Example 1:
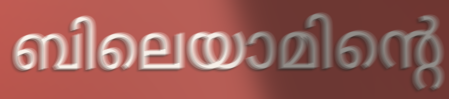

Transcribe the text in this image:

ബിലെയാമിന്റെ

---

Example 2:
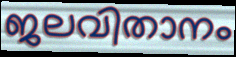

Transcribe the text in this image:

ജലവിതാനം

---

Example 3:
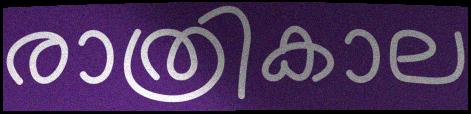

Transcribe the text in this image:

രാത്രികാല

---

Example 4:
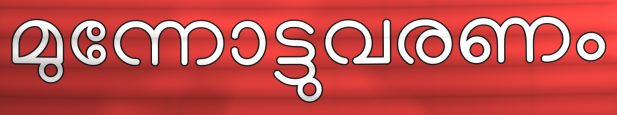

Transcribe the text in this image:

മുന്നോട്ടുവരണം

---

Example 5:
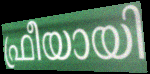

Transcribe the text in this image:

ഫ്രീയായി